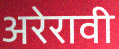
अरेरावी